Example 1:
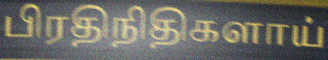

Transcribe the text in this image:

பிரதிநிதிகளாய்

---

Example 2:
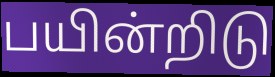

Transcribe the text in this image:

பயின்றிடு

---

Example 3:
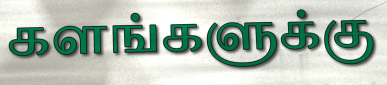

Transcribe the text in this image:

களங்களுக்கு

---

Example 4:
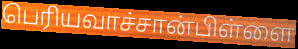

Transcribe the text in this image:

பெரியவாச்சான்பிள்ளை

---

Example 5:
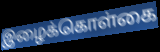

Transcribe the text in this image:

இழைக்கொள்கை